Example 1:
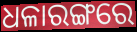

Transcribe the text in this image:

ଧଳାରଙ୍ଗରେ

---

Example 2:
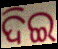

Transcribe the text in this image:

ଦିଇ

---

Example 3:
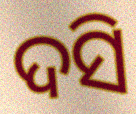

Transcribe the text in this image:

ଦସି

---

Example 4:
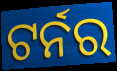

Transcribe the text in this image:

ଟର୍ନର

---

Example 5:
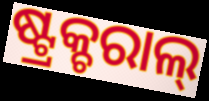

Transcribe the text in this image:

ଷ୍ଟ୍ରକ୍ଚରାଲ୍